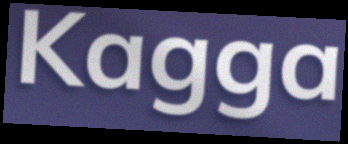
Kagga